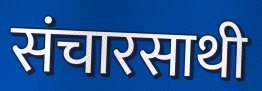
संचारसाथी